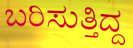
ಬರಿಸುತ್ತಿದ್ದ